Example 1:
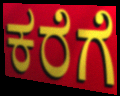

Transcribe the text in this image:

ಕರೆಗೆ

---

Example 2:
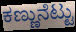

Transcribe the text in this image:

ಕಣ್ಣುನೆಟ್ಟು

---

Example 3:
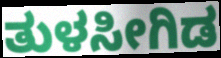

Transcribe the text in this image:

ತುಳಸೀಗಿಡ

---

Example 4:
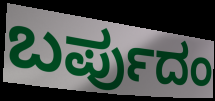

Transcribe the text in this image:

ಬರ್ಪುದಂ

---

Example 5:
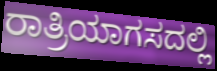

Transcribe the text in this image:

ರಾತ್ರಿಯಾಗಸದಲ್ಲಿ